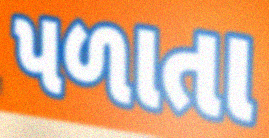
પળાતા